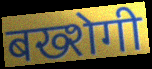
बख्शेगी